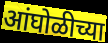
आंघोळीच्या